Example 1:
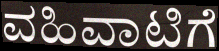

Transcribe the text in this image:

ವಹಿವಾಟಿಗೆ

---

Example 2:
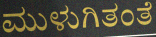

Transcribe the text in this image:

ಮುಳುಗಿತಂತೆ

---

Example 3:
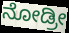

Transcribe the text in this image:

ನೋಡ್ರೀ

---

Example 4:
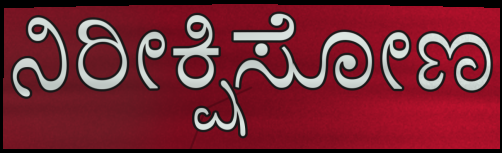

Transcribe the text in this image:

ನಿರೀಕ್ಷಿಸೋಣ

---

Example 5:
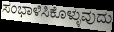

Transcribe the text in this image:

ಸಂಭಾಳಿಸಿಕೊಳ್ಳುವುದು